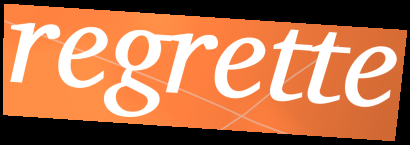
regrette